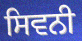
ਸਿਵਨੀ